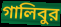
গালিবুর